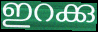
ഇറക്കു